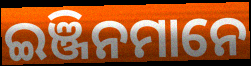
ଇଞ୍ଜିନମାନେ